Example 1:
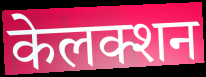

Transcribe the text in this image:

केलक्शन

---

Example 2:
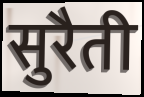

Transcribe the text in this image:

सुरैती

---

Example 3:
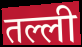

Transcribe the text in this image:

तल्ली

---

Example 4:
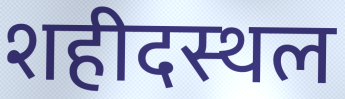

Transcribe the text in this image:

शहीदस्थल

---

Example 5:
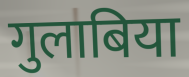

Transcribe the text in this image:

गुलाबिया